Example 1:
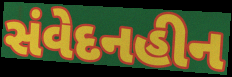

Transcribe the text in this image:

સંવેદનહીન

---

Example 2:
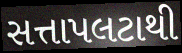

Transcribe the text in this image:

સત્તાપલટાથી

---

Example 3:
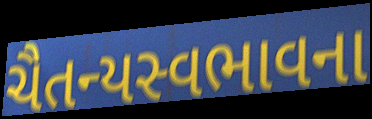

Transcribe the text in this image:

ચૈતન્યસ્વભાવના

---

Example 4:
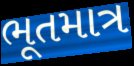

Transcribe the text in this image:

ભૂતમાત્ર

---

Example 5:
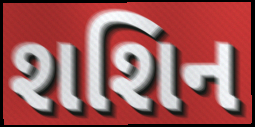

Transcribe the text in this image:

શશિન